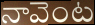
నావెంట